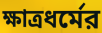
ক্ষাত্রধর্মের